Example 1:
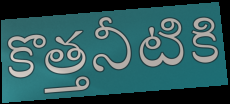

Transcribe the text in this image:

కొత్తనీటికి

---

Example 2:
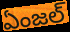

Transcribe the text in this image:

ఏంజల్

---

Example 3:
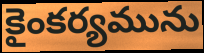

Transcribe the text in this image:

కైంకర్యమును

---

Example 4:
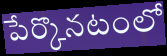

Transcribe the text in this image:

పేర్కొనటంలో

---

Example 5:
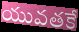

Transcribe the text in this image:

యువతకే